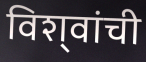
विश्वांची